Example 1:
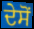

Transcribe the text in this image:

ਦੇਸੋਂ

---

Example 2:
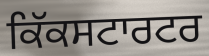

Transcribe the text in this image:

ਕਿੱਕਸਟਾਰਟਰ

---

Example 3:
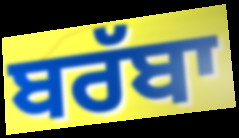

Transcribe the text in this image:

ਬਰੱਬਾ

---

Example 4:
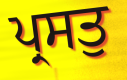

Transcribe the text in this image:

ਪ੍ਰਸਤੁ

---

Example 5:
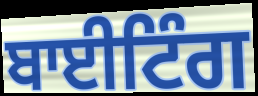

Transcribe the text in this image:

ਬਾਈਟਿੰਗ